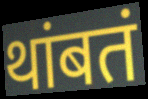
थांबतं